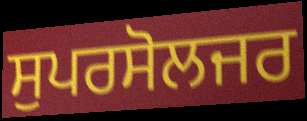
ਸੁਪਰਸੋਲਜਰ